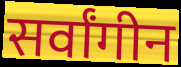
सर्वांगीन